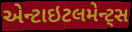
એન્ટાઇટલમેન્ટ્સ